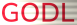
GODL